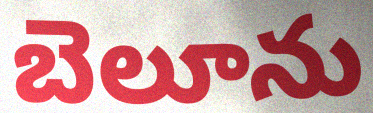
బెలూను